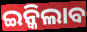
ଇନ୍କିଲାବ